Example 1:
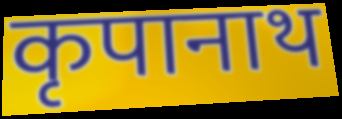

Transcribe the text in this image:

कृपानाथ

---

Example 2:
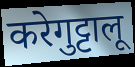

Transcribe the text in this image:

करेगुट्टालू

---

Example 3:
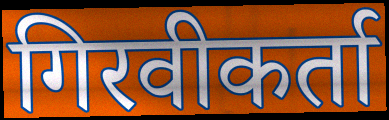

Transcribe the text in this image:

गिरवीकर्ता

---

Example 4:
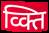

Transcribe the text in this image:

व्क्ति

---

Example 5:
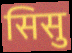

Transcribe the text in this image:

सिसु